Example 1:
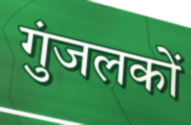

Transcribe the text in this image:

गुंजलकों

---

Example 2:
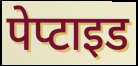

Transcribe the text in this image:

पेप्टाइड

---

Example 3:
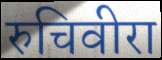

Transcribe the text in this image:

रुचिवीरा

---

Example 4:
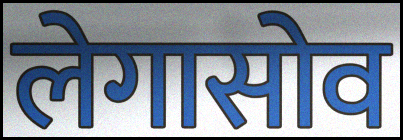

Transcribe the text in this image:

लेगासोव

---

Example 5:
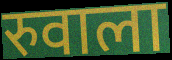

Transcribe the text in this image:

रुवाला